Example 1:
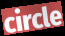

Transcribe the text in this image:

circle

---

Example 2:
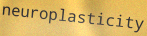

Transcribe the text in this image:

neuroplasticity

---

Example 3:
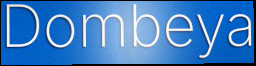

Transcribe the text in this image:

Dombeya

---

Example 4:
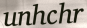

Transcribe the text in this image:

unhchr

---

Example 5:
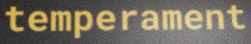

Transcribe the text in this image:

temperament